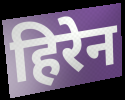
हिरेन